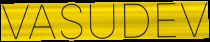
VASUDEV